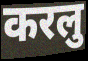
करलु